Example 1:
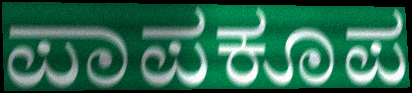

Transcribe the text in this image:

ಪಾಪಕೂಪ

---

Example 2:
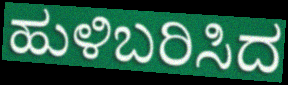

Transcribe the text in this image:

ಹುಳಿಬರಿಸಿದ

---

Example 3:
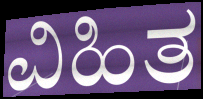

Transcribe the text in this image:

ವಿಹಿತ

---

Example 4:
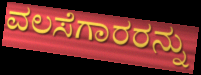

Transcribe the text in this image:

ವಲಸೆಗಾರರನ್ನು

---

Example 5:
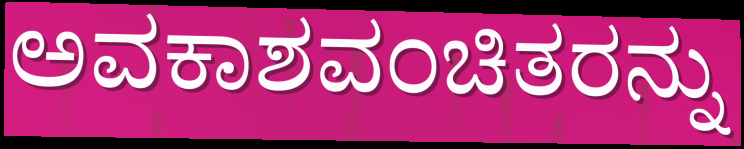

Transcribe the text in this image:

ಅವಕಾಶವಂಚಿತರನ್ನು